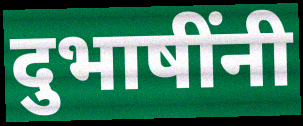
दुभाषींनी